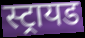
स्ट्रायड